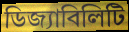
ডিজ্যাবিলিটি